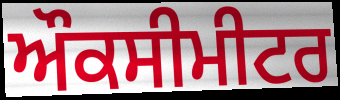
ਔਕਸੀਮੀਟਰ